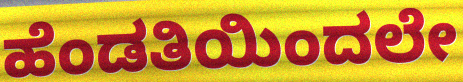
ಹೆಂಡತಿಯಿಂದಲೇ